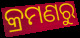
କ୍ରମଣରୁ